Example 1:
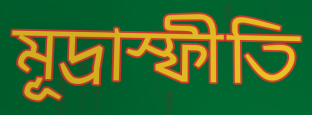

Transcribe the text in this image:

মূদ্রাস্ফীতি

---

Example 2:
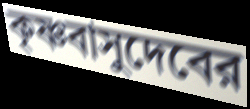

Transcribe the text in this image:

কৃষ্ণবাসুদেবের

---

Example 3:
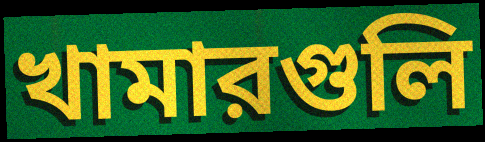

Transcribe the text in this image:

খামারগুলি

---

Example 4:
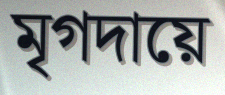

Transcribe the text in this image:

মৃগদায়ে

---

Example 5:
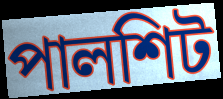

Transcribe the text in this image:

পালশিট